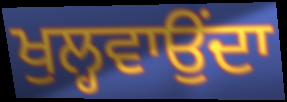
ਖੁਲ੍ਹਵਾਉਂਦਾ